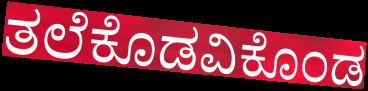
ತಲೆಕೊಡವಿಕೊಂಡ